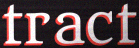
tract